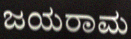
ಜಯರಾಮ